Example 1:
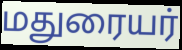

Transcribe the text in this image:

மதுரையர்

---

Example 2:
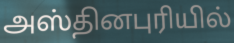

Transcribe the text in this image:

அஸ்தினபுரியில்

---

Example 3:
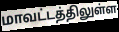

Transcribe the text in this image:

மாவட்டத்திலுள்ள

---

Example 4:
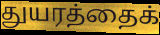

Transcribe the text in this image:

துயரத்தைக்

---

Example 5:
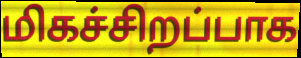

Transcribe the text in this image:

மிகச்சிறப்பாக